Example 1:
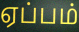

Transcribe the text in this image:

ஏப்பம்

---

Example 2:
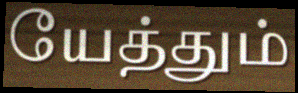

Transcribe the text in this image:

யேத்தும்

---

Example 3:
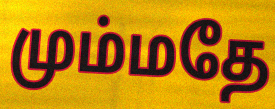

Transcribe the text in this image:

மும்மதே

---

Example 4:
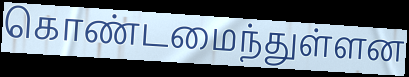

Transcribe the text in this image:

கொண்டமைந்துள்ளன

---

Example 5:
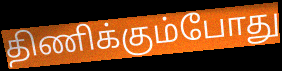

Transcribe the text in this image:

திணிக்கும்போது